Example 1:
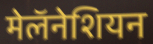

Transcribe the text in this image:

मेलॅनेशियन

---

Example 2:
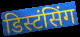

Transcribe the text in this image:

डिस्टंसिंग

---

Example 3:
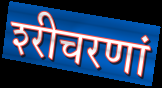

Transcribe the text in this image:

श्रीचरणां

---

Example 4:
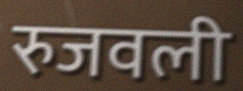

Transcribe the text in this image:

रुजवली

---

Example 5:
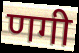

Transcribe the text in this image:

णगी